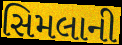
સિમલાની